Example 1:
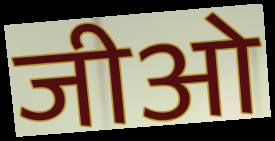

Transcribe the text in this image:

जीओ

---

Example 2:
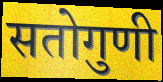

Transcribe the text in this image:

सतोगुणी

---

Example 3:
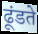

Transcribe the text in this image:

ढूंडते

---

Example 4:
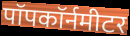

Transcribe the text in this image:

पॉपकॉर्नमीटर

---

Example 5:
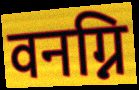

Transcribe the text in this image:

वनग्नि